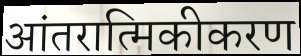
आंतरात्मिकीकरण